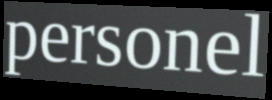
personel